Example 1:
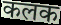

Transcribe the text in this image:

कलक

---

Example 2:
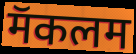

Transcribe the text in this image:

मॅकलम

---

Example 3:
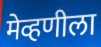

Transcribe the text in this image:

मेव्हणीला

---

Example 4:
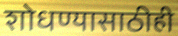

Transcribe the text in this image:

शोधण्यासाठीही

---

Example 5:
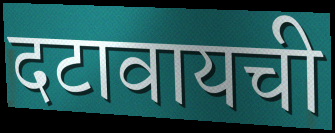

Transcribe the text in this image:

दटावायची